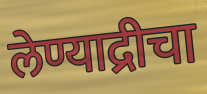
लेण्याद्रीचा